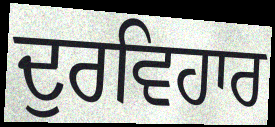
ਦੁਰਵਿਹਾਰ